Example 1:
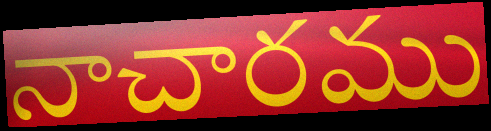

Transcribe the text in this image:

నాచారము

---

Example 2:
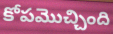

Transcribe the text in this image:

కోపమొచ్చింది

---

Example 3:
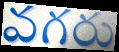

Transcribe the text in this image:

వగరు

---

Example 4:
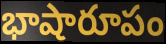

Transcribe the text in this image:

భాషారూపం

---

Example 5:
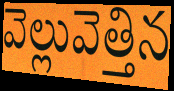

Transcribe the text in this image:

వెల్లువెత్తిన